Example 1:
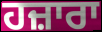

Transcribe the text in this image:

ਹਜ਼ਾਰਾ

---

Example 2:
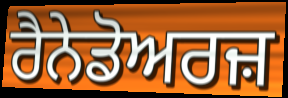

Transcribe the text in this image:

ਰੈਨੇਡੋਅਰਜ਼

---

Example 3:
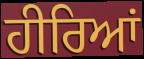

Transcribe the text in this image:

ਹੀਰਿਆਂ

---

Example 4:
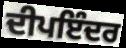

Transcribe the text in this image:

ਦੀਪਇੰਦਰ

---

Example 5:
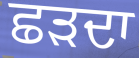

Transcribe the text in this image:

ਛੜਦਾ